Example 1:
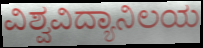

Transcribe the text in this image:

ವಿಶ್ವವಿದ್ಯಾನಿಲಯ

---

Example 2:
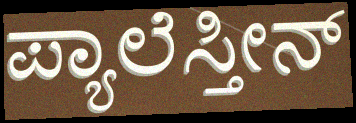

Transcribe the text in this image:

ಪ್ಯಾಲೆಸ್ತೀನ್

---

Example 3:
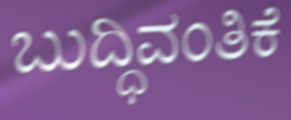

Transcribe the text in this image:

ಬುದ್ಧಿವಂತಿಕೆ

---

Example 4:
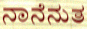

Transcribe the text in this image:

ನಾನೆನುತ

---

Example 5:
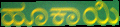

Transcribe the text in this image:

ಹೂಕಾಯಿ